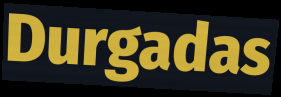
Durgadas